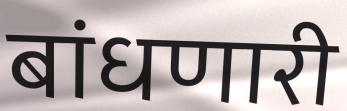
बांधणारी